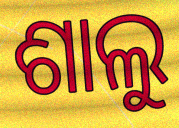
ଶାଲୁ